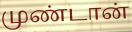
முண்டான்